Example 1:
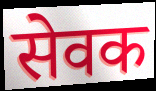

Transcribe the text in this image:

सेवक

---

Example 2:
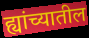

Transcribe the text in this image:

ह्यांच्यातील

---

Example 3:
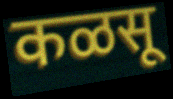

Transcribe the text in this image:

कळसू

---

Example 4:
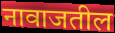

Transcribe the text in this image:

नावाजतील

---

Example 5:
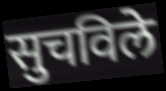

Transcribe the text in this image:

सुचविले